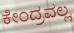
ಕೇಂದ್ರವಲ್ಲ